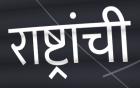
राष्ट्रांची